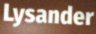
Lysander